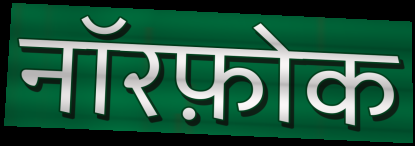
नॉरफ़ोक